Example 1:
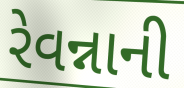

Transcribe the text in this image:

રેવન્નાની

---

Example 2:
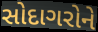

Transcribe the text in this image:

સોદાગરોને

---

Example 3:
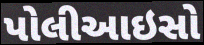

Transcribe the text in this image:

પોલીઆઇસો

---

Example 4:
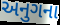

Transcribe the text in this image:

અનુગના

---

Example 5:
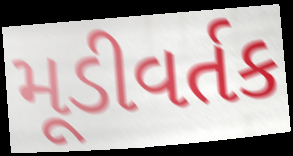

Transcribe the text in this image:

મૂડીવર્તક